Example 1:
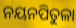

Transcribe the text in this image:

ନୟନପିତୁଳା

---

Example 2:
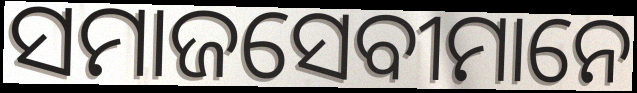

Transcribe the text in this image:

ସମାଜସେବୀମାନେ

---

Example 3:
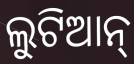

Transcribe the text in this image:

ଲୁଟିଆନ୍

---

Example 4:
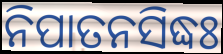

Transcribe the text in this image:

ନିପାତନସିଦ୍ଧଃ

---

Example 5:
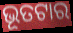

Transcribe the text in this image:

ଭୂତଟାର